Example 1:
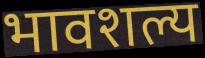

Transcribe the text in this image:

भावशल्य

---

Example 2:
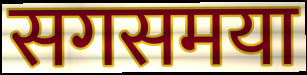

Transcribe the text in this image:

सगसमया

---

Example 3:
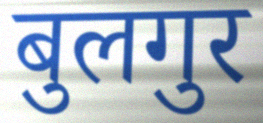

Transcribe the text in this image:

बुलगुर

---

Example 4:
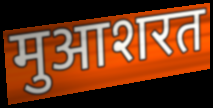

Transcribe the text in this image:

मुआशरत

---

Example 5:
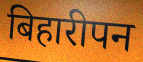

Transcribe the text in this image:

बिहारीपन